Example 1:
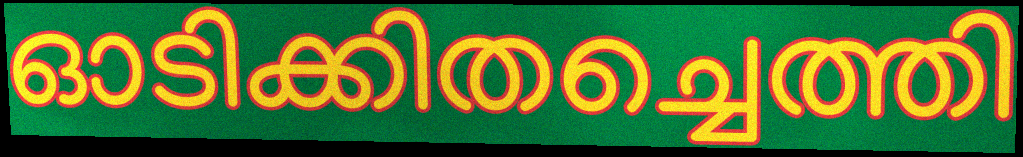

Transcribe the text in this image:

ഓടിക്കിതച്ചെത്തി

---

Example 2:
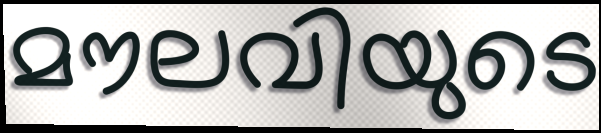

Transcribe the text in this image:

മൗലവിയുടെ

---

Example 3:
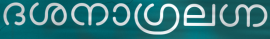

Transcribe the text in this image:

ദശനാഗ്രലഗ്ന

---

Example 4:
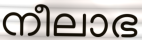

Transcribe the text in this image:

നീലാഭ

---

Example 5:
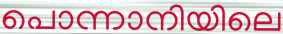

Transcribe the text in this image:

പൊന്നാനിയിലെ